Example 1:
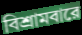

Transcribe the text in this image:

বিশ্রামবারে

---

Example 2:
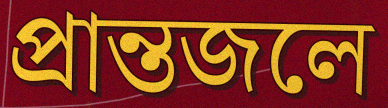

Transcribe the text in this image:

প্রান্তজলে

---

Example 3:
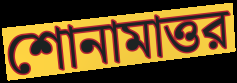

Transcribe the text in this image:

শোনামাত্তর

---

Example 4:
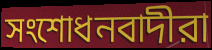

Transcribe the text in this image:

সংশোধনবাদীরা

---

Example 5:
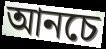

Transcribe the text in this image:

আনচে